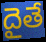
దైతే